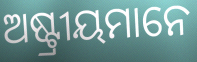
ଅଷ୍ଟ୍ରୀୟମାନେ